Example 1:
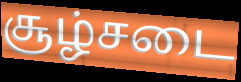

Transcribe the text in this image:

சூழ்சடை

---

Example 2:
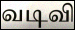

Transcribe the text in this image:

வடிவி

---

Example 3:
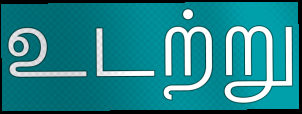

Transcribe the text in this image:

உடற்று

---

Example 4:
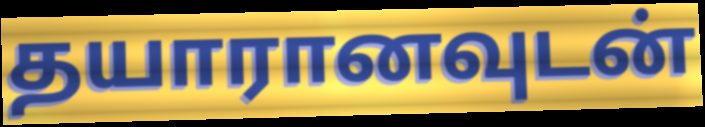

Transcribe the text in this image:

தயாரானவுடன்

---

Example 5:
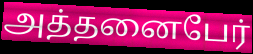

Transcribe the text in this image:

அத்தனைபேர்